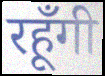
रहूँगी